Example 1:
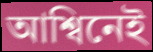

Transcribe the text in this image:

আশ্বিনেই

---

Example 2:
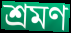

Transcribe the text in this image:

শ্রমণ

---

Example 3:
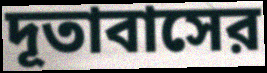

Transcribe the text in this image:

দূতাবাসের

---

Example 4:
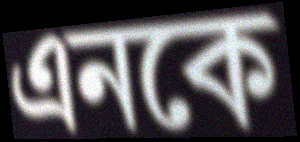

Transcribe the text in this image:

এনকে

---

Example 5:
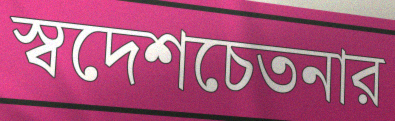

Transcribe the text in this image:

স্বদেশচেতনার